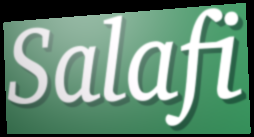
Salafi